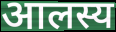
आलस्य